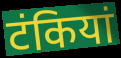
टंकियां